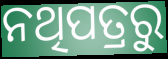
ନଥିପତ୍ରରୁ